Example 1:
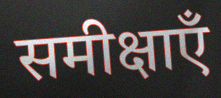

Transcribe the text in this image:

समीक्षाएँ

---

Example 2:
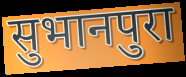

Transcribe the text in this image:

सुभानपुरा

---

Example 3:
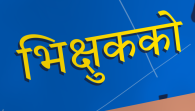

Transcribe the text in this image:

भिक्षुकको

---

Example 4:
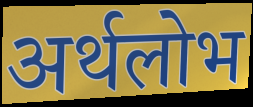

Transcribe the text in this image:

अर्थलोभ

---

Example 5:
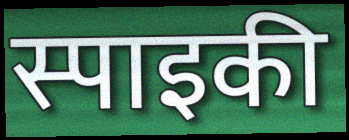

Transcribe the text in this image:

स्पाइकी